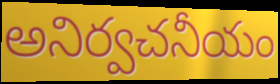
అనిర్వచనీయం